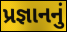
પ્રજ્ઞાનનું